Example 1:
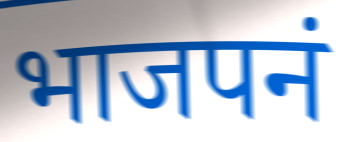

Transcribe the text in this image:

भाजपनं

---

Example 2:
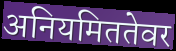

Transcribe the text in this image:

अनियमिततेवर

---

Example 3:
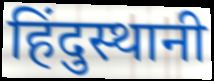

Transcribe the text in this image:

हिंदुस्थानी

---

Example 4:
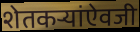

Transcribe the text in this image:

शेतकऱ्यांऐवजी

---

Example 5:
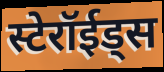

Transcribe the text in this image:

स्टेरॉईड्स